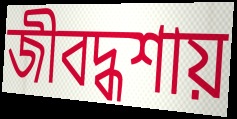
জীবদ্ধশায়